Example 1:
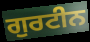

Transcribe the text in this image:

ਗੁਰਟੀਨ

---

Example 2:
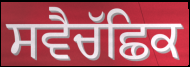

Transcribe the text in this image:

ਸਵੈਚੱਛਿਕ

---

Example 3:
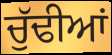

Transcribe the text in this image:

ਚੁੱਢੀਆਂ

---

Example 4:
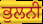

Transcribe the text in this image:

ਭੁਲਨੀ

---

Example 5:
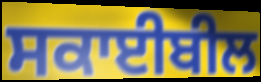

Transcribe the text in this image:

ਸਕਾਈਬੀਲ